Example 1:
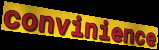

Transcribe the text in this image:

convinience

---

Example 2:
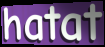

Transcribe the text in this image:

hatat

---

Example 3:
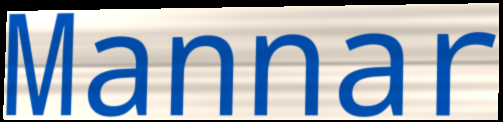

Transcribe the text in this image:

Mannar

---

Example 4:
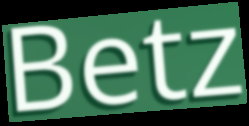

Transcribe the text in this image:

Betz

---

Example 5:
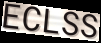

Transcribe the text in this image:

ECLSS